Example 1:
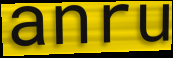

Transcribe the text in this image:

anru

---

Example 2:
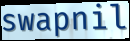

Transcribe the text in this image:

swapnil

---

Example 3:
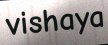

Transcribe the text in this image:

vishaya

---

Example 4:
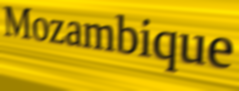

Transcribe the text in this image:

Mozambique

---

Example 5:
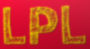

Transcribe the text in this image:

LPL